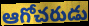
ఆగోచరుడు